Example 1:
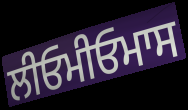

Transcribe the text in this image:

ਲੀਓਮੀਓਮਾਸ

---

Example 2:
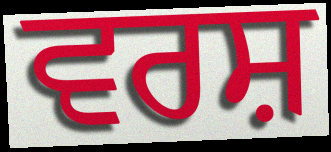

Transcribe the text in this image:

ਵਰਸ਼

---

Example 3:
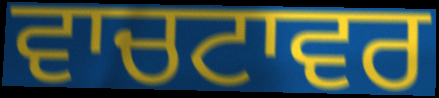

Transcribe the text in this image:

ਵਾਚਟਾਵਰ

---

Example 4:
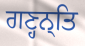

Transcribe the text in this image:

ਗਣ੍ਹਨ੍ਤਿ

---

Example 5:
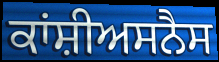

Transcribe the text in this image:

ਕਾਂਸ਼ੀਅਸਨੈਸ